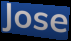
Jose